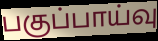
பகுப்பாய்வு